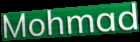
Mohmad